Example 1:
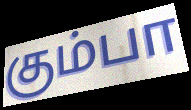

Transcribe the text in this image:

கும்பா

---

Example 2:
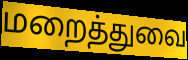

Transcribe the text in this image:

மறைத்துவை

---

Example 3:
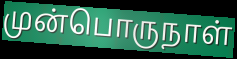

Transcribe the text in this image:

முன்பொருநாள்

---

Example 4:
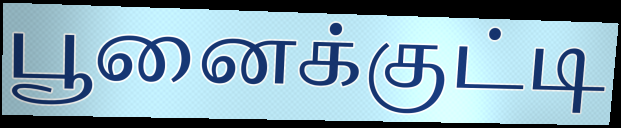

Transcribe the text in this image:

பூனைக்குட்டி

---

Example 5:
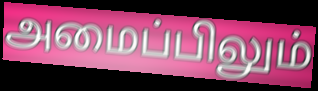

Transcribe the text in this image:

அமைப்பிலும்